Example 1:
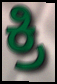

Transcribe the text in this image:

ಕ್ರಿ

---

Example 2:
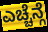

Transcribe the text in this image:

ಎಚ್ಚೆನ್ಗೆ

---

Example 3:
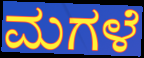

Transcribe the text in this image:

ಮಗಳೆ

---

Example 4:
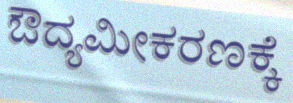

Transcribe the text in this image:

ಔದ್ಯಮೀಕರಣಕ್ಕೆ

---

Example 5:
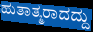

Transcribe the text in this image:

ಹುತಾತ್ಮರಾದದ್ದು